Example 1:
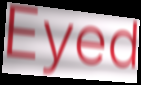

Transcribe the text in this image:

Eyed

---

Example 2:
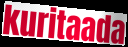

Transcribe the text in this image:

kuritaada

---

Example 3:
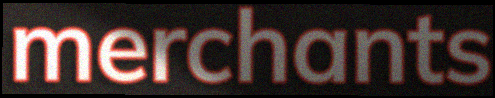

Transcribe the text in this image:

merchants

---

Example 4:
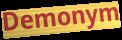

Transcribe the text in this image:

Demonym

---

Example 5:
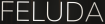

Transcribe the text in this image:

FELUDA